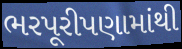
ભરપૂરીપણામાંથી